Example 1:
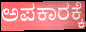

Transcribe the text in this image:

ಅಪಕಾರಕ್ಕೆ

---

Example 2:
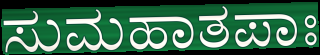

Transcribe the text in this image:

ಸುಮಹಾತಪಾಃ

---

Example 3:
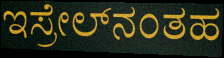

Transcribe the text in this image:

ಇಸ್ರೇಲ್‌ನಂತಹ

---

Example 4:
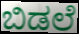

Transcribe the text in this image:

ಬಿಡಲೆ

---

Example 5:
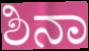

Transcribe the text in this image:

ಶಿನಾ